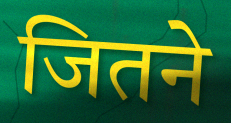
जितने